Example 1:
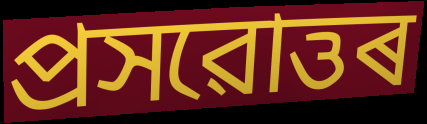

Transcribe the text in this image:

প্ৰসৱোত্তৰ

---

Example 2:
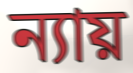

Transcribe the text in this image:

ন্যায়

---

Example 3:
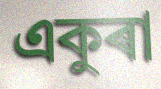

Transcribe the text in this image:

একুৰা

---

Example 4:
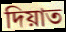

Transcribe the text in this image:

দিয়াত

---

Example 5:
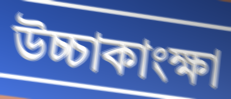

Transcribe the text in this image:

উচ্চাকাংক্ষা